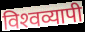
विश्‍वव्यापी